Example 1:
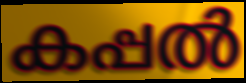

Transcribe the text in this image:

കപ്പൽ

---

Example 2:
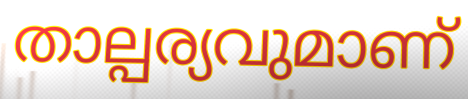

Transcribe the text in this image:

താല്പര്യവുമാണ്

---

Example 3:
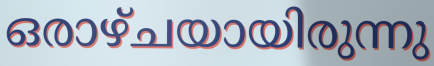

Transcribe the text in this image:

ഒരാഴ്ചയായിരുന്നു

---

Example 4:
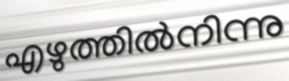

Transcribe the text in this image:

എഴുത്തിൽനിന്നു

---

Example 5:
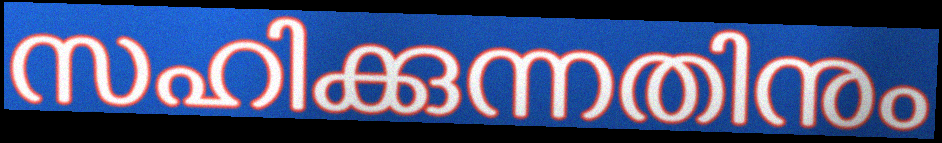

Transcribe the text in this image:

സഹിക്കുന്നതിനും